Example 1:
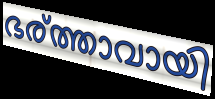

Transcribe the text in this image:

ഭര്ത്താവായി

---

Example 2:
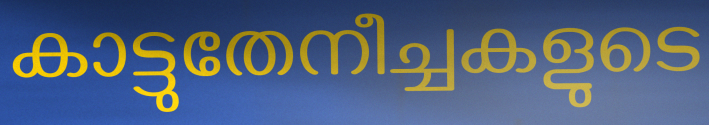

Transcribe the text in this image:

കാട്ടുതേനീച്ചകളുടെ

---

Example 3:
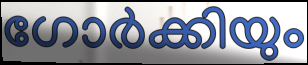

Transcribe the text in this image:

ഗോർക്കിയും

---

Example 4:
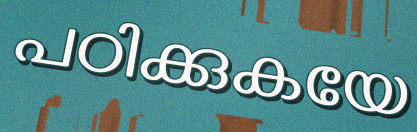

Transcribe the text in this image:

പഠിക്കുകയേ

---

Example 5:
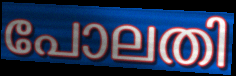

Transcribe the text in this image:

പോലതി